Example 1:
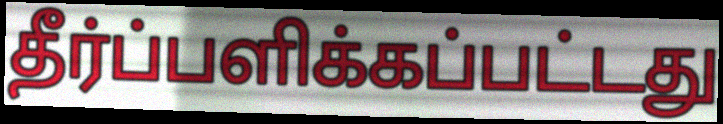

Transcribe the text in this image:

தீர்ப்பளிக்கப்பட்டது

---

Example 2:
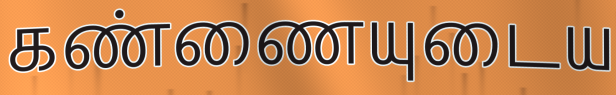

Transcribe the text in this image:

கண்ணையுடைய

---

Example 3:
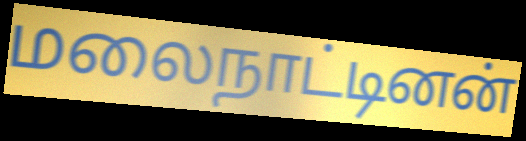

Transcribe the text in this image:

மலைநாட்டினன்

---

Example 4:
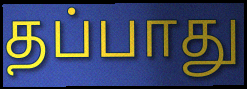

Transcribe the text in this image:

தப்பாது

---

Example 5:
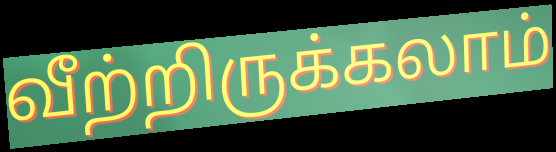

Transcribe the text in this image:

வீற்றிருக்கலாம்